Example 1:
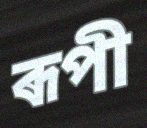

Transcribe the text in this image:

ৰূপী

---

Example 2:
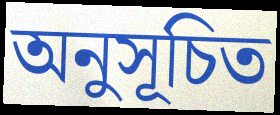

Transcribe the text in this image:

অনুসূচিত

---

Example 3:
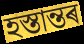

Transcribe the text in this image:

হস্তান্তৰ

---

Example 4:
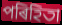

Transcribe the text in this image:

পৰিহিতা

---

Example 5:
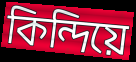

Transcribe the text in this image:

কিন্দিয়ে